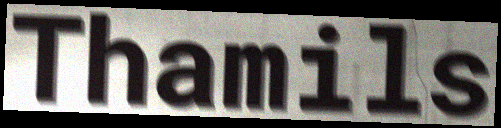
Thamils